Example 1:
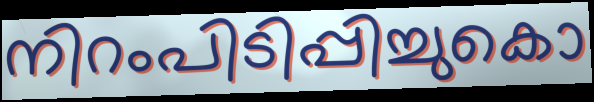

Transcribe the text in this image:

നിറംപിടിപ്പിച്ചുകൊ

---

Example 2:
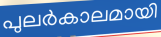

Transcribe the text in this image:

പുലർകാലമായി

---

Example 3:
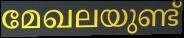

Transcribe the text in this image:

മേഖലയുണ്ട്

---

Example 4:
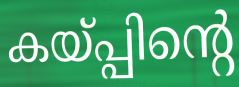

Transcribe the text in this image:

കയ്പ്പിന്റെ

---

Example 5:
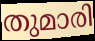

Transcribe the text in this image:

തുമാരി